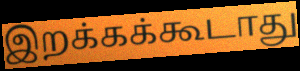
இறக்கக்கூடாது